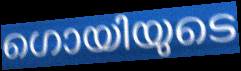
ഗൊയിയുടെ